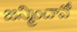
జన్మించావో